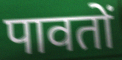
पावतों